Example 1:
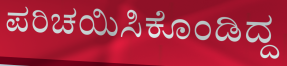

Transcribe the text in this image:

ಪರಿಚಯಿಸಿಕೊಂಡಿದ್ದ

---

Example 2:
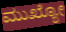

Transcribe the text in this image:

ಮುಖ್ಯೋ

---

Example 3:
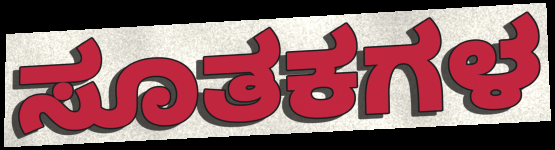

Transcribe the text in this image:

ಸೂತಕಗಳ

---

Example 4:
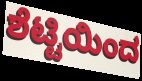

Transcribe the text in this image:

ಶೆಟ್ಟಿಯಿಂದ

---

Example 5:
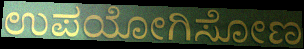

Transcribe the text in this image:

ಉಪಯೋಗಿಸೋಣ